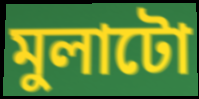
মুলাটো